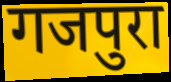
गजपुरा